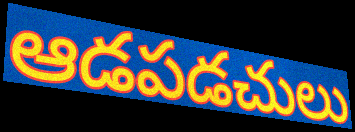
ఆడపడచులు